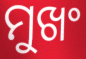
ମୁଖଂ